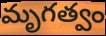
మృగత్వం